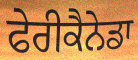
ਫੇਰੀਕੈਨੇਡਾ